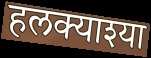
हलक्याश्या